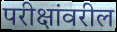
परीक्षांवरील